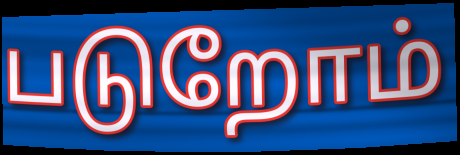
படுறோம்